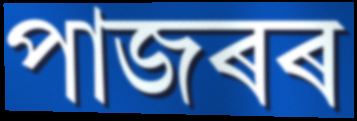
পাজৰৰ